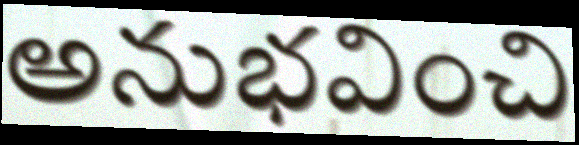
అనుభవించి